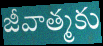
జీవాత్మకు